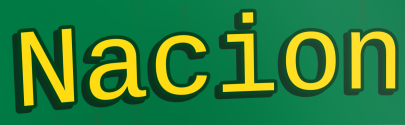
Nacion